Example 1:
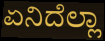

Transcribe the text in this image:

ಏನಿದೆಲ್ಲಾ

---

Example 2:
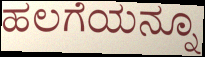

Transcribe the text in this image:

ಹಲಗೆಯನ್ನೂ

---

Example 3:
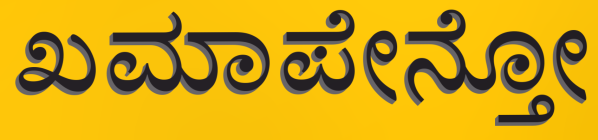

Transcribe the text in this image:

ಖಮಾಪೇನ್ತೋ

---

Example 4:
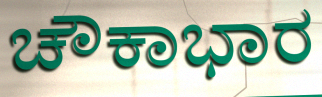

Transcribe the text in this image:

ಚೌಕಾಭಾರ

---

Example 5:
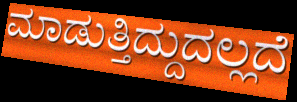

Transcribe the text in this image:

ಮಾಡುತ್ತಿದ್ದುದಲ್ಲದೆ